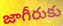
జాగీరుకు